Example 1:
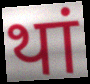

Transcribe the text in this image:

थां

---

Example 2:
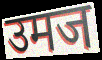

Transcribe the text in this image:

उमज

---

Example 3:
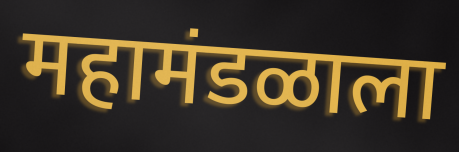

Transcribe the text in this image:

महामंडळाला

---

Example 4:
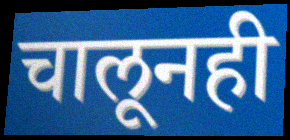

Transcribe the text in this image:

चालूनही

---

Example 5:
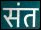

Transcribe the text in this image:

संत